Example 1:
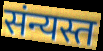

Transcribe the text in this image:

संन्यस्त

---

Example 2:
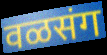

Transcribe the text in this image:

वळसंग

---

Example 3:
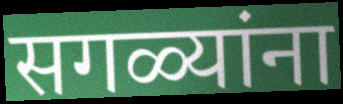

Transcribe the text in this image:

सगळ्यांना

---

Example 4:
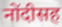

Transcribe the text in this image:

नोंदीसह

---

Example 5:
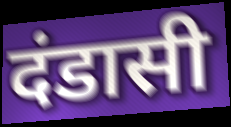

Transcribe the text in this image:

दंडासी